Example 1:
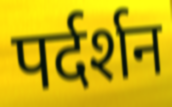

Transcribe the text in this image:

पर्दर्शन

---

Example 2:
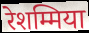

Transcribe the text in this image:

रेशम्मिया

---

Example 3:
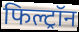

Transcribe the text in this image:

फिल्ट्रॉन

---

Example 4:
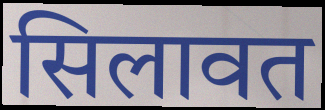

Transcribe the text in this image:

सिलावत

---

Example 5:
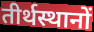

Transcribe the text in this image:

तीर्थस्थानों